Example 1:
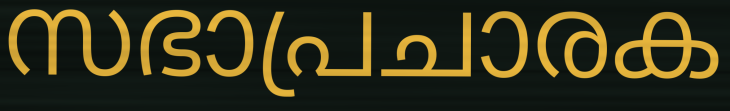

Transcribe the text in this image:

സഭാപ്രചാരക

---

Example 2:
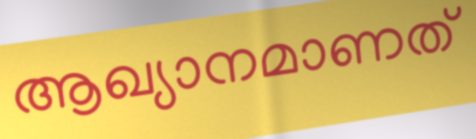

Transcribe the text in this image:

ആഖ്യാനമാണത്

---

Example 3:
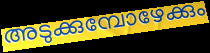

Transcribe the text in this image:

അടുക്കുമ്പോഴേക്കും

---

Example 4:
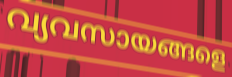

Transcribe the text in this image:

വ്യവസായങ്ങളെ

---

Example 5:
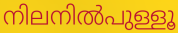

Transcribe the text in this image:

നിലനിൽപുള്ളൂ